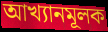
আখ্যানমূলক